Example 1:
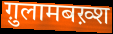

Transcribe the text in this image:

ग़ुलामबख़्श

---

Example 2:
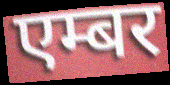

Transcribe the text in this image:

एम्बर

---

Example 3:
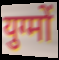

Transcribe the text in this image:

युग्मों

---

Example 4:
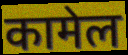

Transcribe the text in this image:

कामेल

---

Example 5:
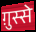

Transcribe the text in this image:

ग़ुस्से